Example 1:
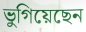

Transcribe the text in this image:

ভুগিয়েছেন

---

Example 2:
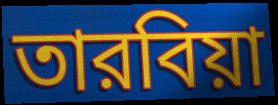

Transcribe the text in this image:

তারবিয়া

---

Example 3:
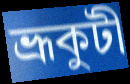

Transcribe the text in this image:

ভ্রূকুটী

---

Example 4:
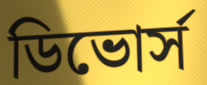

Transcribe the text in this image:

ডিভোর্স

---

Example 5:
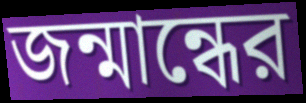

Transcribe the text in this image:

জন্মান্ধের